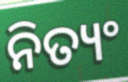
ନିତ୍ୟଂ